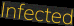
Infected